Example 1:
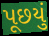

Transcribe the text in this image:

પૂછયું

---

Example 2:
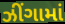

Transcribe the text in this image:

ઝીંગામાં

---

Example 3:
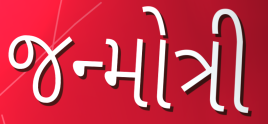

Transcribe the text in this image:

જન્મોત્રી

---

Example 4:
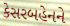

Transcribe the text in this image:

કેસરબહેનને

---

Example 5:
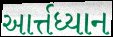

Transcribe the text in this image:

આર્ત્તધ્યાન